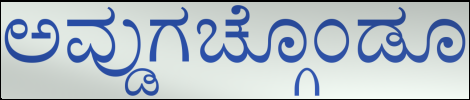
ಅವ್ಡುಗಚ್ಗೊಂಡೂ